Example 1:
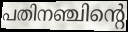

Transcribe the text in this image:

പതിനഞ്ചിന്റെ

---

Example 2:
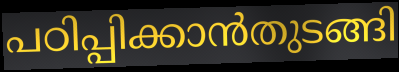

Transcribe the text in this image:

പഠിപ്പിക്കാൻതുടങ്ങി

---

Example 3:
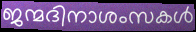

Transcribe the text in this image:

ജന്മദിനാശംസകൾ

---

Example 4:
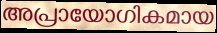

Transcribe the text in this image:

അപ്രായോഗികമായ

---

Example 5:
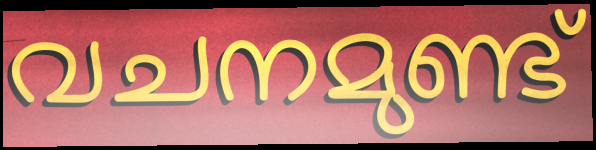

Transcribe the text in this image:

വചനമുണ്ട്